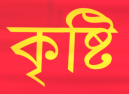
কৃষ্টি